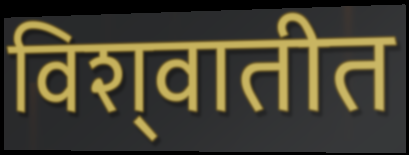
विश्वातीत